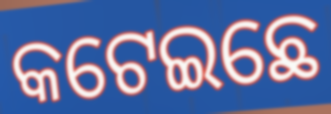
କଟେଇଛେ